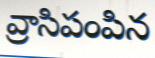
వ్రాసిపంపిన